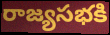
రాజ్యసభకి